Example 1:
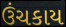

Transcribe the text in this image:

ઉંચકાય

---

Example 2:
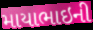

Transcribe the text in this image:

માયાભાઇની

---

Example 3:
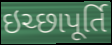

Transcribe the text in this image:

ઇચ્છાપૂર્તિ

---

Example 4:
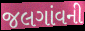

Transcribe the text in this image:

જલગાંવની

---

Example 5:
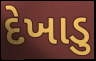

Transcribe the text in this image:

દેખાડુ